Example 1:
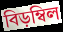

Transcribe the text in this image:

বিড়ম্বিল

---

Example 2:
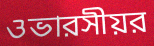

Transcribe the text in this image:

ওভারসীয়র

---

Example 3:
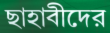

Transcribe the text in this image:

ছাহাবীদের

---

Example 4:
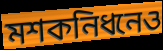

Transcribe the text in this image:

মশকনিধনেও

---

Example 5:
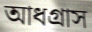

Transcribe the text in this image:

আধগ্রাস